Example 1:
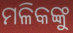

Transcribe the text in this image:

ମଳିକଙ୍କୁ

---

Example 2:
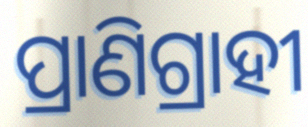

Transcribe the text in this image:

ପ୍ରାଣିଗ୍ରାହୀ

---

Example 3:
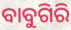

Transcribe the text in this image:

ବାବୁଗିରି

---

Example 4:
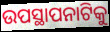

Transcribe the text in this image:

ଉପସ୍ଥାପନାଟିକୁ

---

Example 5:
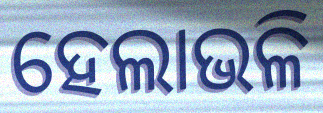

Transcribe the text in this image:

ହେଲାଭଳି